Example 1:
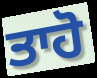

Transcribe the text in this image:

ਤਾਹੋ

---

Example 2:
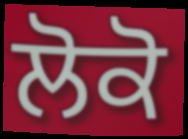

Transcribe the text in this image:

ਲੋਕੋ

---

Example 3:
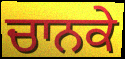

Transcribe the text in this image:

ਚਾਨਕੇ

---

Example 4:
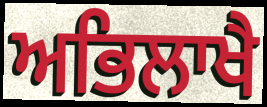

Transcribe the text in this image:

ਅਭਿਲਾਖੈ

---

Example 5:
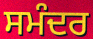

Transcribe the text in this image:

ਸਮੰਦਰ